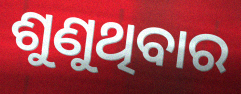
ଶୁଣୁଥିବାର